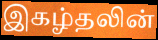
இகழ்தலின்